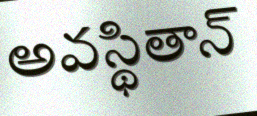
అవస్థితాన్